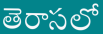
తెరాసలో